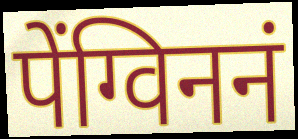
पेंग्विननं